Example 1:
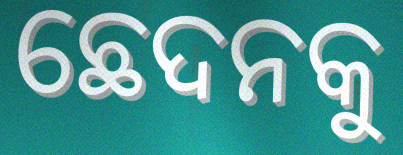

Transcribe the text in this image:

ଛେଦନକୁ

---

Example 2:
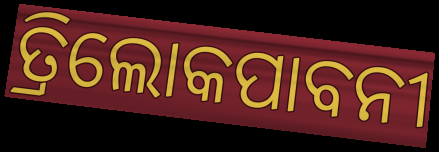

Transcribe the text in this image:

ତ୍ରିଲୋକପାବନୀ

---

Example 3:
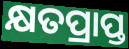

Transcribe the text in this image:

କ୍ଷତପ୍ରାପ୍ତ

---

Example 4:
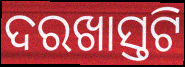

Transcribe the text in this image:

ଦରଖାସ୍ତଟି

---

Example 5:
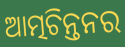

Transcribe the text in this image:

ଆତ୍ମଚିନ୍ତନର